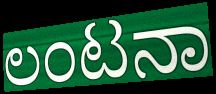
ಲಂಟನಾ